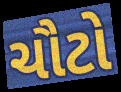
ચૌટો